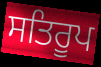
ਸਤਿਰੂਪ